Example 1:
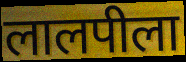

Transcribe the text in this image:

लालपीला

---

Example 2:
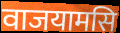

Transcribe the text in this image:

वाजयामसि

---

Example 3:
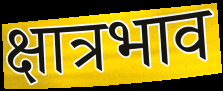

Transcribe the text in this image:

क्षात्रभाव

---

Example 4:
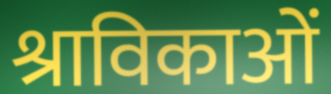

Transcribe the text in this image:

श्राविकाओं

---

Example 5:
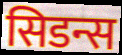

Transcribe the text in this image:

सिडन्स